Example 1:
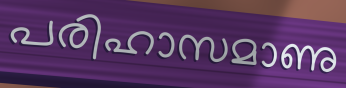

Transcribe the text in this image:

പരിഹാസമാണു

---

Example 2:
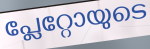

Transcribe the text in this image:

പ്ലേറ്റോയുടെ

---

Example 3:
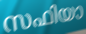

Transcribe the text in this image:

സഫിയാ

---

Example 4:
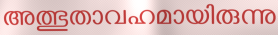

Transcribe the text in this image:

അത്ഭുതാവഹമായിരുന്നു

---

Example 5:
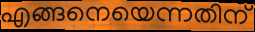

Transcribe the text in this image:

എങ്ങനെയെന്നതിന്